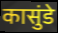
कासुंडे